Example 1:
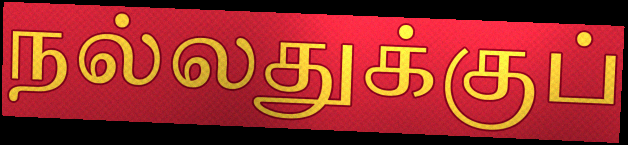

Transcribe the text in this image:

நல்லதுக்குப்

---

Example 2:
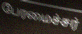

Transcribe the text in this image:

பேரமைச்சர்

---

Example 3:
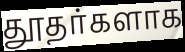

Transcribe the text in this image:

தூதர்களாக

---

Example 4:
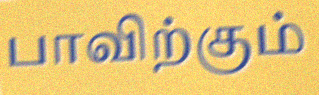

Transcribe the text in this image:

பாவிற்கும்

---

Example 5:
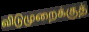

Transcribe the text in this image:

விடுமுறைக்குத்